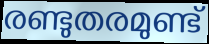
രണ്ടുതരമുണ്ട്